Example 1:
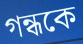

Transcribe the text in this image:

গন্ধকে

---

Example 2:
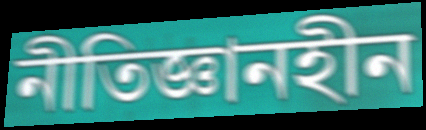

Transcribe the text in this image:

নীতিজ্ঞানহীন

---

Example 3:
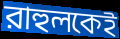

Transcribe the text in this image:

রাহুলকেই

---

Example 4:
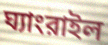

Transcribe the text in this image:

ঘ্যাংরাইল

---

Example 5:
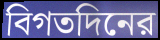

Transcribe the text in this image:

বিগতদিনের